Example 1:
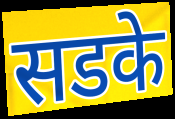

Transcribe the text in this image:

सडके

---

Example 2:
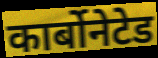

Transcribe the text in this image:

कार्बोनेटेड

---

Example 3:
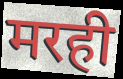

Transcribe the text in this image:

मरही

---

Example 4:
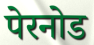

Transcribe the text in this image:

पेरनोड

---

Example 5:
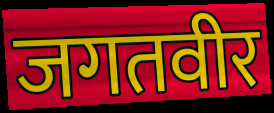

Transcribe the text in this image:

जगतवीर